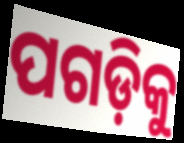
ପଗଡ଼ିକୁ